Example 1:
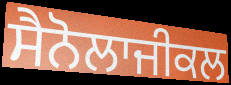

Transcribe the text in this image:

ਸੈਨੋਲਾਜੀਕਲ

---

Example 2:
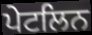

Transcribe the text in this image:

ਪੇਟਲਿਨ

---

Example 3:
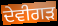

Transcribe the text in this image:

ਦੇਵੀਗੜ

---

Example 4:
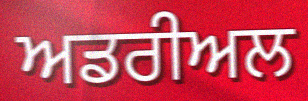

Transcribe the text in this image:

ਅਡਰੀਅਲ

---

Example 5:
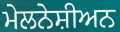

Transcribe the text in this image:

ਮੇਲਨੇਸ਼ੀਅਨ